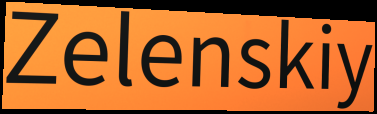
Zelenskiy